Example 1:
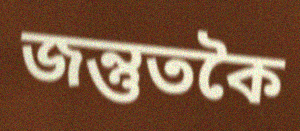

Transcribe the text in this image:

জন্তুতকৈ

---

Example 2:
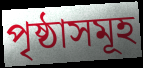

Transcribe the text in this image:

পৃষ্ঠাসমূহ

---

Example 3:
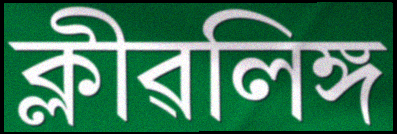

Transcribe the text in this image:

ক্লীৱলিঙ্গ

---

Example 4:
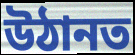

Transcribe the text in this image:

উঠানত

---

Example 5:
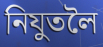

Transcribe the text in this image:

নিযুতলৈ